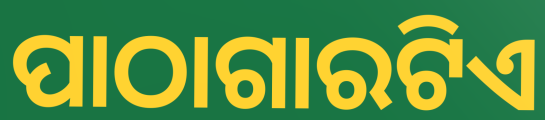
ପାଠାଗାରଟିଏ